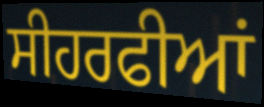
ਸੀਹਰਫੀਆਂ